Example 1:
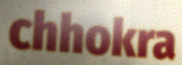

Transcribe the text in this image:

chhokra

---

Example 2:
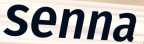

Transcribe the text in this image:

senna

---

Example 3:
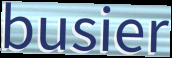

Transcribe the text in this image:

busier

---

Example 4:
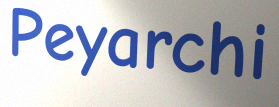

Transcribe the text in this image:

Peyarchi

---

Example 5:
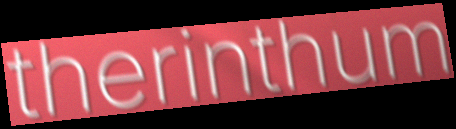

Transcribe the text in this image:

therinthum